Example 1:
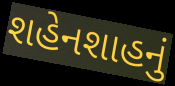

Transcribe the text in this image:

શહેનશાહનું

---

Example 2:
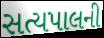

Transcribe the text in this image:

સત્યપાલની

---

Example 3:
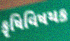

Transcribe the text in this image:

કૃષિવિષયક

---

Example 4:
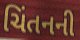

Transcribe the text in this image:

ચિંતનની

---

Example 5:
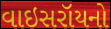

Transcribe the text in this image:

વાઇસરૉયનો